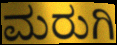
ಮರುಗಿ